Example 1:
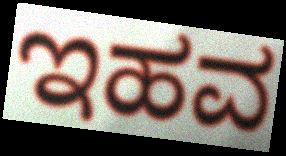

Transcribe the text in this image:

ಇಹವ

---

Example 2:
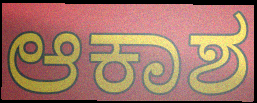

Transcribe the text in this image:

ಆಕಾಶ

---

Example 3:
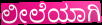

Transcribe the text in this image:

ಲೀಲೆಯಾಗಿ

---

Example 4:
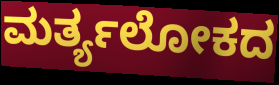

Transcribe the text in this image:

ಮರ್ತ್ಯಲೋಕದ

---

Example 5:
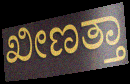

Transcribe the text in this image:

ಖೀಣತ್ತಾ